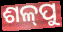
ଶଳ୍‍ପୁ